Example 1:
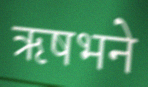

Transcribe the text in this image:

ऋषभने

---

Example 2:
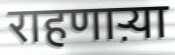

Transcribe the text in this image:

राहणाऱ्‍या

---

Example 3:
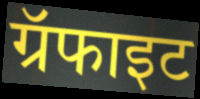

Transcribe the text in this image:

ग्रॅफाइट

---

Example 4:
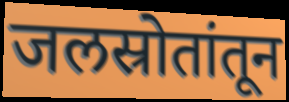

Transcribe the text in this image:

जलस्रोतांतून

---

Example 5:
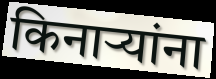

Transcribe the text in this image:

किनाऱ्यांना